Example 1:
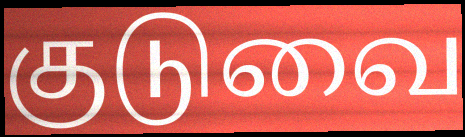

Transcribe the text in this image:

குடுவை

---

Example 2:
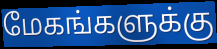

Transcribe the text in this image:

மேகங்களுக்கு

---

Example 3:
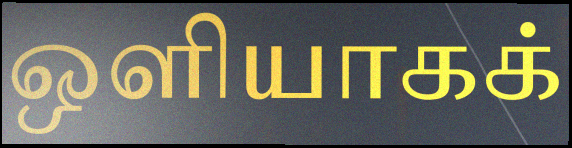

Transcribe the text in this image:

ஒளியாகக்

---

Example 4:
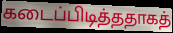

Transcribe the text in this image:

கடைப்பிடித்ததாகத்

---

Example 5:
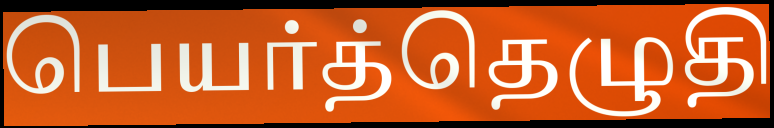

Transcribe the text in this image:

பெயர்த்தெழுதி